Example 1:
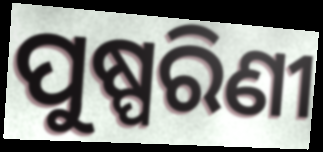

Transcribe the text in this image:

ପୁଷ୍ପରିଣୀ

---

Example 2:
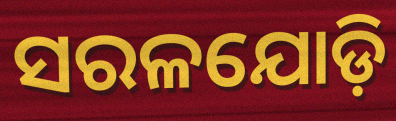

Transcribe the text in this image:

ସରଳଯୋଡ଼ି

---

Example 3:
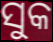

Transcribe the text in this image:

ସୁକ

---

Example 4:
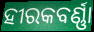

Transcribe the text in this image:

ହୀରକବର୍ଣ୍ଣା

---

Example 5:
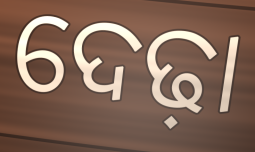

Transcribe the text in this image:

ଦେଢ଼ା